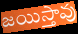
జయిస్తావు